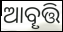
ଆବୄତ୍ତି